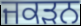
ਜਕੜਨ